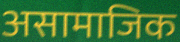
असामाजिक